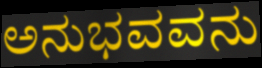
ಅನುಭವವನು